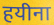
हयीना